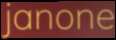
janone